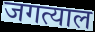
जगत्याल